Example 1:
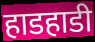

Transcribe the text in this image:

हाडहाडी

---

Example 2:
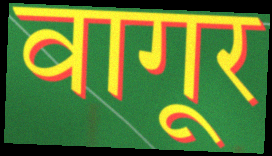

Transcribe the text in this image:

वागूर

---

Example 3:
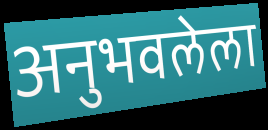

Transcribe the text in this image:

अनुभवलेला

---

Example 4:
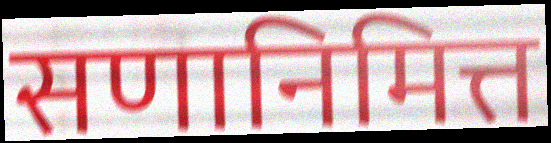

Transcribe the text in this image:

सणानिमित्त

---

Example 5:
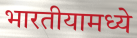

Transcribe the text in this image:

भारतीयामध्ये